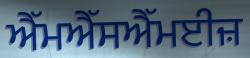
ਐੱਮਐੱਸਐੱਮਈਜ਼